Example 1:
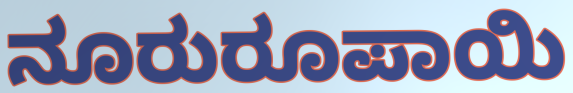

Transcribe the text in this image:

ನೂರುರೂಪಾಯಿ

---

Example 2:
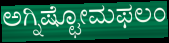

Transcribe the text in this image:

ಅಗ್ನಿಷ್ಟೋಮಫಲಂ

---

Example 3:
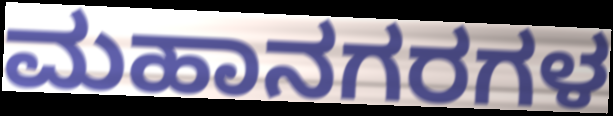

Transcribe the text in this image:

ಮಹಾನಗರಗಳ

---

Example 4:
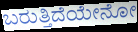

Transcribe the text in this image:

ಬರುತ್ತಿದೆಯೇನೋ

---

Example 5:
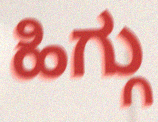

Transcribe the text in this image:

ಹಿಗ್ಗು